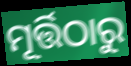
ମୂର୍ତ୍ତିଠାରୁ